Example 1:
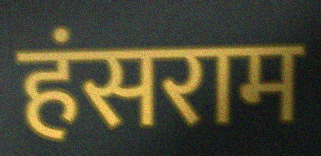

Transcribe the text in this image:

हंसराम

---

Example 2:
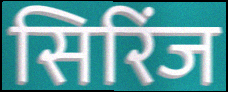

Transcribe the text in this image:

सिरिंज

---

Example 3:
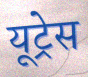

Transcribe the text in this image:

यूट्रेस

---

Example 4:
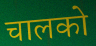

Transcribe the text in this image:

चालको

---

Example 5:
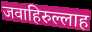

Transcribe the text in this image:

जवाहिरुल्लाह